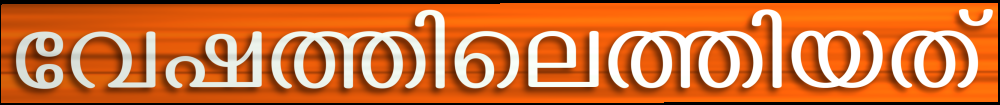
വേഷത്തിലെത്തിയത്